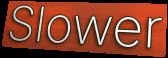
Slower